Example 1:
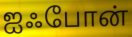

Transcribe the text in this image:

ஐஃபோன்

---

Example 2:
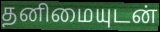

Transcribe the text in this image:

தனிமையுடன்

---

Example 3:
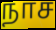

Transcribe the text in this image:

நாச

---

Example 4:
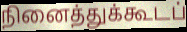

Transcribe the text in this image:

நினைத்துக்கூடப்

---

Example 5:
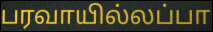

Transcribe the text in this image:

பரவாயில்லப்பா